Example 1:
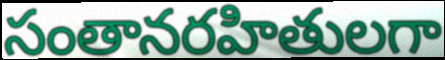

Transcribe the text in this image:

సంతానరహితులగా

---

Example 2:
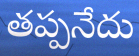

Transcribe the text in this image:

తప్పనేదు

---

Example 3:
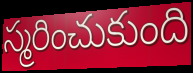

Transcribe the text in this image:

స్మరించుకుంది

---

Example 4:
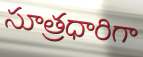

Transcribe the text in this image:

సూత్రధారిగా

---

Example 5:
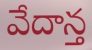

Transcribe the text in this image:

వేదాన్త